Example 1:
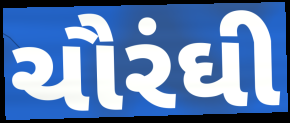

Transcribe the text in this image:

ચૌરંઘી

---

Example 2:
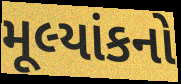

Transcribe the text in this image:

મૂલ્યાંકનો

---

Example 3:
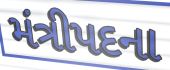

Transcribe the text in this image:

મંત્રીપદના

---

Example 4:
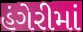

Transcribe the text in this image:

હંગેરીમાં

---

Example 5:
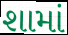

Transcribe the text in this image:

શામાં